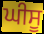
ਘੀਸੂ